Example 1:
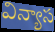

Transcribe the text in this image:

విన్యాస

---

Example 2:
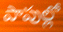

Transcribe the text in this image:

పాపుల్లో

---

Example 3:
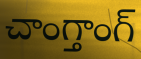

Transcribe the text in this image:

చాంగ్తాంగ్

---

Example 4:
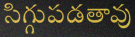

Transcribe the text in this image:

సిగ్గుపడతావు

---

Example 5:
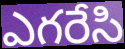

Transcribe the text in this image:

ఎగరేసి